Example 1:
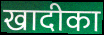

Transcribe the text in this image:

खादीका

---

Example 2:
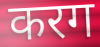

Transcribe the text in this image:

करग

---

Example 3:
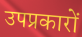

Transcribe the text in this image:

उपप्रकारों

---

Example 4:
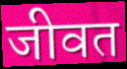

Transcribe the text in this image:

जीवत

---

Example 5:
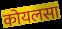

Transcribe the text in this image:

कोयलसा